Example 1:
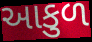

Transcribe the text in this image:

આકુળ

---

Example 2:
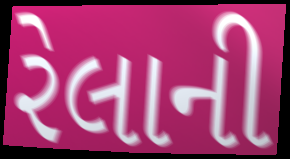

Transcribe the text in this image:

રેલાની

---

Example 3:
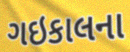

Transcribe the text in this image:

ગઇકાલના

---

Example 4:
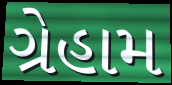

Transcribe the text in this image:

ગ્રેહામ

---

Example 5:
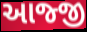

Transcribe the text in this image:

આજ્જી